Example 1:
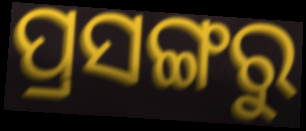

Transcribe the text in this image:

ପ୍ରସଙ୍ଗରୁ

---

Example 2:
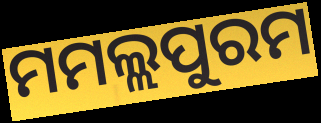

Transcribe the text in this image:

ମମଲ୍ଲପୁରମ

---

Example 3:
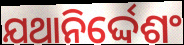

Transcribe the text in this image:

ଯଥାନିର୍ଦ୍ଦେଶଂ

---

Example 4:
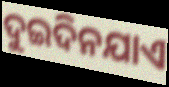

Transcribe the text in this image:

ଦୁଇଦିନଯାଏ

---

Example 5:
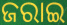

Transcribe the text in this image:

ଜରାଇ